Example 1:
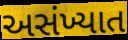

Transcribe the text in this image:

અસંખ્યાત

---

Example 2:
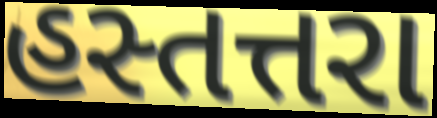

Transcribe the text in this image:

હસ્તત્તરા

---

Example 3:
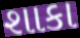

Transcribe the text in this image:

શાકા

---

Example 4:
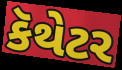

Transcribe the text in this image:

કૅથેટર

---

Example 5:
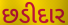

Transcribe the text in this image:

છડીદાર